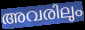
അവരിലും